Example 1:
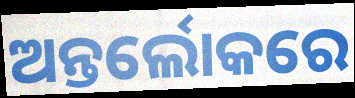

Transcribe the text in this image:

ଅନ୍ତର୍ଲୋକରେ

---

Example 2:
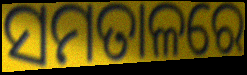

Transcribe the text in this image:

ସମତାଳରେ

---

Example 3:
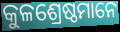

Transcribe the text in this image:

କୁଳଶ୍ରେଷ୍ଠମାନେ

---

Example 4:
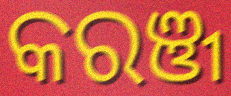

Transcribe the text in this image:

କରଞ୍ଜ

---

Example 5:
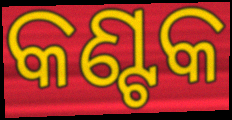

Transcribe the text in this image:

କଣ୍ଟକ